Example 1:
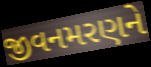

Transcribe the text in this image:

જીવનમરણને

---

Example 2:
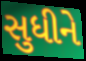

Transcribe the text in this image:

સુધીને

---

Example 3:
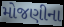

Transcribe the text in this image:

મોજણીના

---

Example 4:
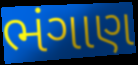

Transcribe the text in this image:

ભંગાણ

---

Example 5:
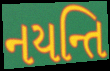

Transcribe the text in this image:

નયન્તિ